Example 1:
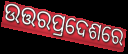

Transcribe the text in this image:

ଉତ୍ତରପ୍ରଦେଶରେ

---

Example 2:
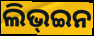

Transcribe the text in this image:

ଲିଭ୍ଇନ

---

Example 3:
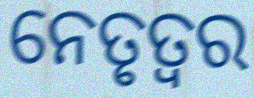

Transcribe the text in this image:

ନେତୃତ୍ଵର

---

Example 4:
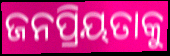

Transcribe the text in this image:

ଜନପ୍ରିୟତାକୁ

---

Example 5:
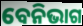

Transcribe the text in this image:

ବେନିଭାଗ